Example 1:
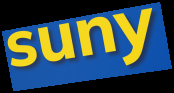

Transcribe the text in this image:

suny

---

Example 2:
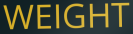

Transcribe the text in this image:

WEIGHT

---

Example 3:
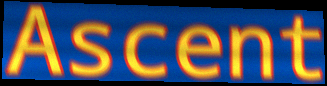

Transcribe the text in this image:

Ascent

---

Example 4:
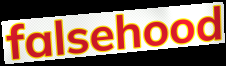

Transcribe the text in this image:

falsehood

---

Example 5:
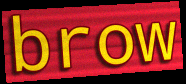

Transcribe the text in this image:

brow